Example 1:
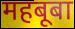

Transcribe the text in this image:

महबूबा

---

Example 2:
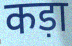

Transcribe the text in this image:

कड़ा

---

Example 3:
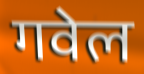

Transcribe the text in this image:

गवेल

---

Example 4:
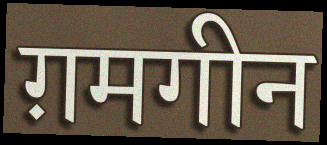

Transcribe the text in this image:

ग़मगीन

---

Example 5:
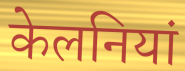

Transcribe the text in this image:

केलनियां